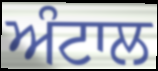
ਅੰਟਾਲ